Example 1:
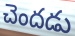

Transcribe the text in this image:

చెందడు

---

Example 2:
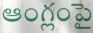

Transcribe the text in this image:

ఆంగ్లంపై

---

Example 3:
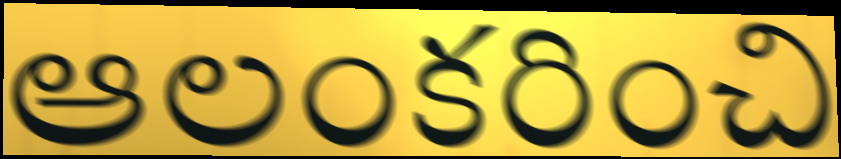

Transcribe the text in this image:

ఆలంకరించి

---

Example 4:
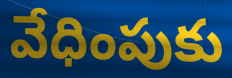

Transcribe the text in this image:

వేధింపుకు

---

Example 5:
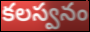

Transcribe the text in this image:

కలస్వనం